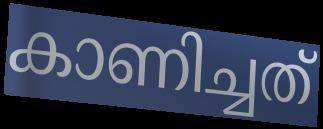
കാണിച്ചത്